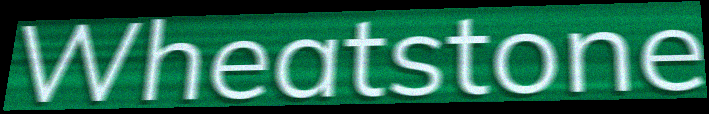
Wheatstone